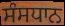
ਸੰਸਧਾਨ